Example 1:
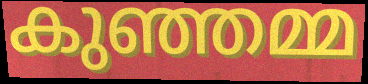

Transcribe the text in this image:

കുഞ്ഞമ്മ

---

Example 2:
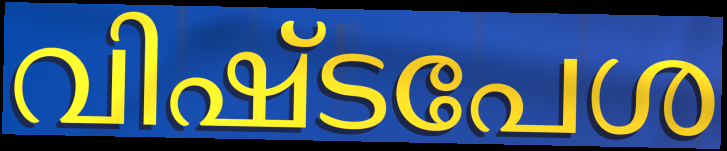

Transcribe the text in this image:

വിഷ്ടപേശ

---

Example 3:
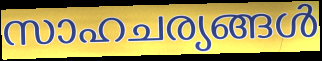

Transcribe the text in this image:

സാഹചര്യങ്ങൾ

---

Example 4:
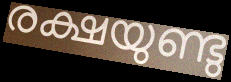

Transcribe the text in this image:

രക്ഷയുണ്ടു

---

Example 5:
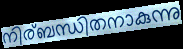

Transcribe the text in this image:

നിര്ബന്ധിതനാകുന്നു